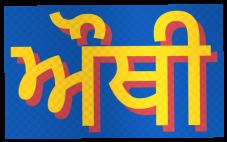
ਔਥੀ